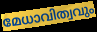
മേധാവിത്വവും